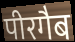
पीरगैब